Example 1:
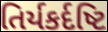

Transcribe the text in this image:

તિર્યકર્દષ્ટિ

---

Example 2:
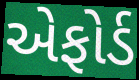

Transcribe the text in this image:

એફોર્ડ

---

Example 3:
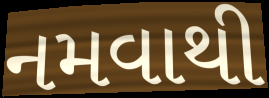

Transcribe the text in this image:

નમવાથી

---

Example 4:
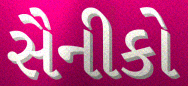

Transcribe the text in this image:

સૈનીકો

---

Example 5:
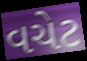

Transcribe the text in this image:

વચેટ